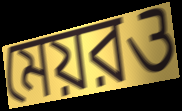
মেয়রও